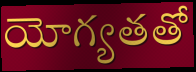
యోగ్యతతో